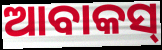
ଆବାକସ୍